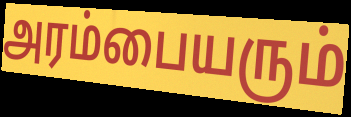
அரம்பையரும்